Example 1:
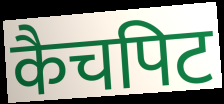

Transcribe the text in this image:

कैचपिट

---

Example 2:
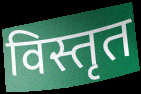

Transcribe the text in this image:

विस्तृत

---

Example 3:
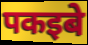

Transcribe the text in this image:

पकइबे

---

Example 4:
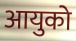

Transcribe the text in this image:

आयुको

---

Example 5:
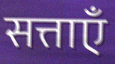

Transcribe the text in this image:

सत्ताएँ